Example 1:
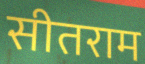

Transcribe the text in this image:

सीतराम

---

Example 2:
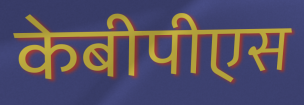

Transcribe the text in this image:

केबीपीएस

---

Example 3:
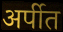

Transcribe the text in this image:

अर्पीत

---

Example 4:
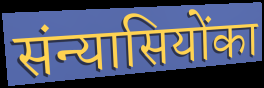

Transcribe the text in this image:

संन्यासियोंका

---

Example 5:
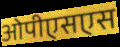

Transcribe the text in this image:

ओपीएसएस